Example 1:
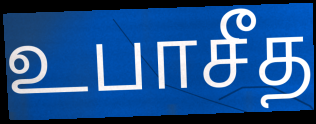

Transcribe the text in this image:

உபாசீத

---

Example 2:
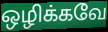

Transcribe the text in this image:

ஒழிக்கவே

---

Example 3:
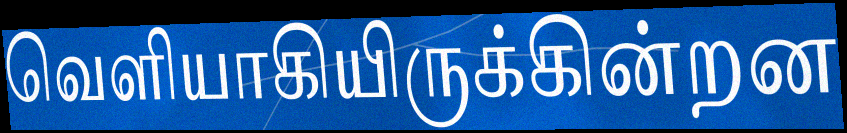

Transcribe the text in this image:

வெளியாகியிருக்கின்றன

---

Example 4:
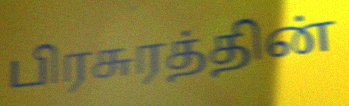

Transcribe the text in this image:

பிரசுரத்தின்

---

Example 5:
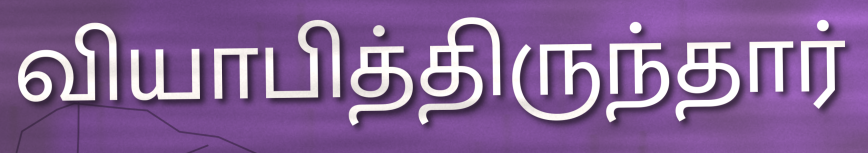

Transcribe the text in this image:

வியாபித்திருந்தார்